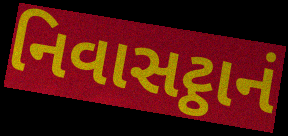
નિવાસટ્ઠાનં